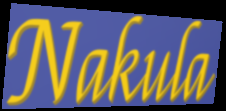
Nakula